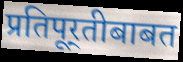
प्रतिपूर्तीबाबत